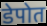
डेपोत